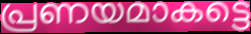
പ്രണയമാകട്ടെ